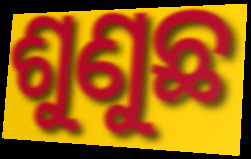
ଶୁଣୁଛ